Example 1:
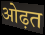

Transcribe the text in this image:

ओढ़त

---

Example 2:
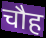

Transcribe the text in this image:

चौह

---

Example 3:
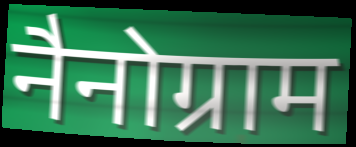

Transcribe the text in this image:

नैनोग्राम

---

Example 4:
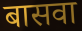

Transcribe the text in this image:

बासवा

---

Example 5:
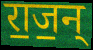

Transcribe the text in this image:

रा॒ज॒न्